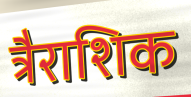
त्रैराशिक